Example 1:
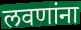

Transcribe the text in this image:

लवणांना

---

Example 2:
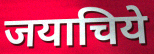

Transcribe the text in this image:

जयाचिये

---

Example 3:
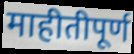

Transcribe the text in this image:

माहीतीपूर्ण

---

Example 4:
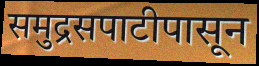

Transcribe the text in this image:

समुद्रसपाटीपासून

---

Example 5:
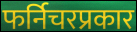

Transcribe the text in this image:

फर्निचरप्रकार